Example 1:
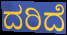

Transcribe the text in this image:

ದರಿದೆ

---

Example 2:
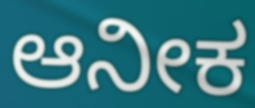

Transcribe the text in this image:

ಆನೀಕ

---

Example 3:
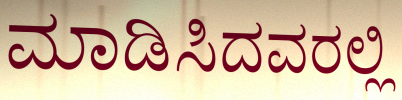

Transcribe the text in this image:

ಮಾಡಿಸಿದವರಲ್ಲಿ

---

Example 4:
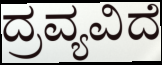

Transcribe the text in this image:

ದ್ರವ್ಯವಿದೆ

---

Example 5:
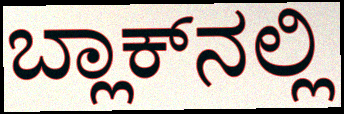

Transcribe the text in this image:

ಬ್ಲಾಕ್‌ನಲ್ಲಿ